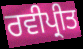
ਰਵੀਪ੍ਰੀਤ